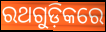
ରଥଗୁଡ଼ିକରେ